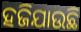
ହଜିଯାଉଛି